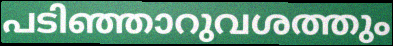
പടിഞ്ഞാറുവശത്തും